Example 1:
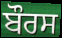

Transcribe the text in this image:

ਬੌਰਸ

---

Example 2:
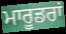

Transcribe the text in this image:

ਮਾਰੂਡਰਾਂ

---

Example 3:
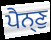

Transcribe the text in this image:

ਪੈਨ੍ਣੁ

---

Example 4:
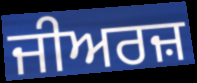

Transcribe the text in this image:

ਜੀਅਰਜ਼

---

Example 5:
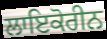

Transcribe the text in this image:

ਲਾਇਕੋਰੀਨ